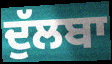
ਦੁੱਲਬਾ